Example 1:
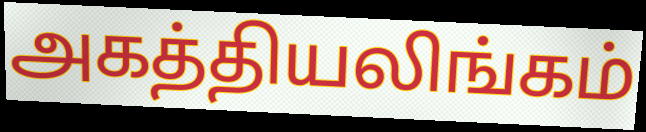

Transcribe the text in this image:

அகத்தியலிங்கம்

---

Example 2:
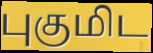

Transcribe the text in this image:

புகுமிட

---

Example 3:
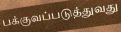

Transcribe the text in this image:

பக்குவப்படுத்துவது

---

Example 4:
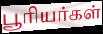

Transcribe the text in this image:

பூரியர்கள்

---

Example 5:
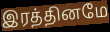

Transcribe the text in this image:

இரத்தினமே